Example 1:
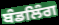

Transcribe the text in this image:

ਬੰਡਲਿੰਗ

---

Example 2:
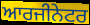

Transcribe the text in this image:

ਆਰਜੀਨੇਟਰ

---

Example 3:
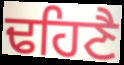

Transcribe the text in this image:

ਢਹਿਣੈ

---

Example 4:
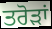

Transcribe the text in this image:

ਤਰੋੜਾਂ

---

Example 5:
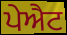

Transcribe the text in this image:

ਪੇਐਟ